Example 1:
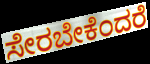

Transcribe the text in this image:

ಸೇರಬೇಕೆಂದರೆ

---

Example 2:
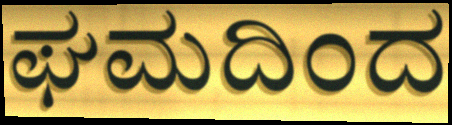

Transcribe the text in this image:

ಘಮದಿಂದ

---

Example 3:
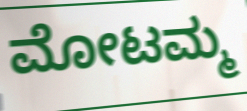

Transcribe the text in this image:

ಮೋಟಮ್ಮ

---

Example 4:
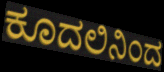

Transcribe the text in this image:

ಕೂದಲಿನಿಂದ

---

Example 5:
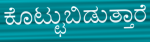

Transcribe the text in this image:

ಕೊಟ್ಟುಬಿಡುತ್ತಾರೆ